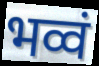
भव्वं